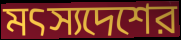
মৎস্যদেশের